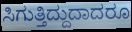
ಸಿಗುತ್ತಿದ್ದುದಾದರೂ